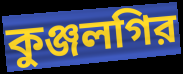
কুঞ্জলগির